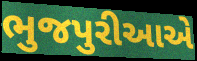
ભુજપુરીઆએ